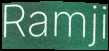
Ramji